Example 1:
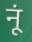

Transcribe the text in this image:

नूं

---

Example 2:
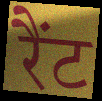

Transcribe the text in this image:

रैंट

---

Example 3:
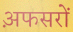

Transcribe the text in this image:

अ़फसरों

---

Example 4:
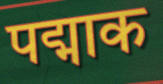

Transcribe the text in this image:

पद्माक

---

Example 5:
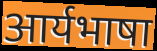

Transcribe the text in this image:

आर्यभाषा